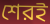
শেরই